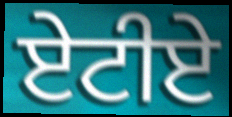
ਏਟੀਏ